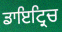
ਡਾਇਟ੍ਰਿਚ